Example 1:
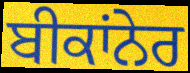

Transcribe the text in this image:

ਬੀਕਾਂਨੇਰ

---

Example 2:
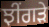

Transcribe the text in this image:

ਝੀਂਗੜੇ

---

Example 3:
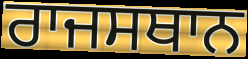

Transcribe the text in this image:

ਰਾਜਸਥਾਨ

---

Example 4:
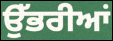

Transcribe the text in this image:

ਉੱਭਰੀਆਂ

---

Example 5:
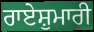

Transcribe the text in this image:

ਰਾਏਸ਼ੁਮਾਰੀ